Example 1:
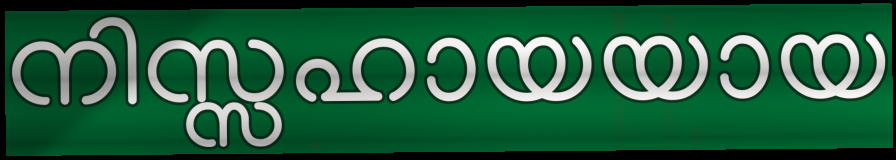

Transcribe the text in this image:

നിസ്സഹായയായ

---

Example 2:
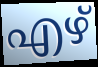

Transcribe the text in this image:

എഴ്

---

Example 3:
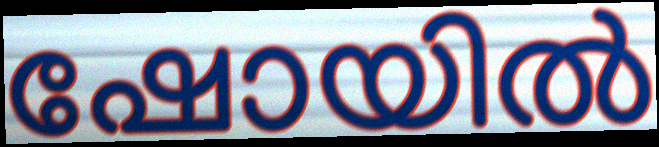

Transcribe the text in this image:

ഷോയിൽ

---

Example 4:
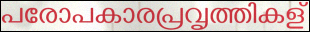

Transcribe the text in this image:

പരോപകാരപ്രവൃത്തികള്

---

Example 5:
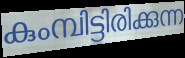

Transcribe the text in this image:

കുംമ്പിട്ടിരിക്കുന്ന